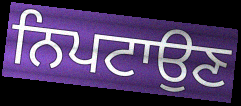
ਨਿਪਟਾਉਣ